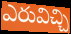
ఎరువిచ్చి